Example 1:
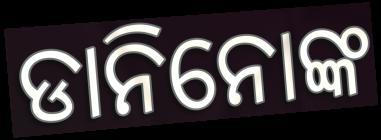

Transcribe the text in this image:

ଡାନିନୋଙ୍କ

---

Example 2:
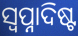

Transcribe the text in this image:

ସ୍ୱପ୍ନାଦିଷ୍ଟ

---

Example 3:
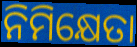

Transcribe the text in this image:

ନିମିକ୍ଷେତା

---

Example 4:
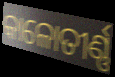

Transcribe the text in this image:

କାଳୋତୀର୍ଣ୍ଣ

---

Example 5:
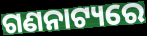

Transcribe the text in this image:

ଗଣନାଟ୍ୟରେ